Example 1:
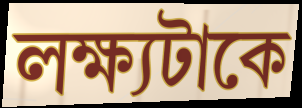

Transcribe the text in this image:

লক্ষ্যটাকে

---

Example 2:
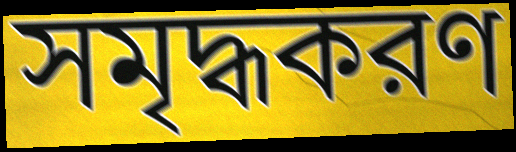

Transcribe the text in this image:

সমৃদ্ধকরণ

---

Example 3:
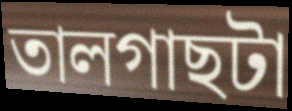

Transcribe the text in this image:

তালগাছটা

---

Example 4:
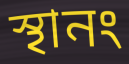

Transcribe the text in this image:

স্থানং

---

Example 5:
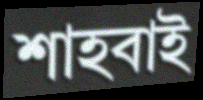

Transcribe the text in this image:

শাহবাই